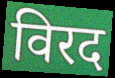
विरद